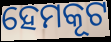
ହେମକୂଟ